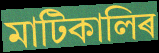
মাটিকালিৰ